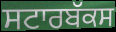
ਸਟਾਰਬੱਕਸ